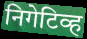
निगेटिव्ह